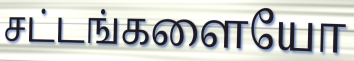
சட்டங்களையோ